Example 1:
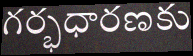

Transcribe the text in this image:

గర్భధారణకు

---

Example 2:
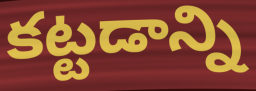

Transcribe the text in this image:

కట్టడాన్ని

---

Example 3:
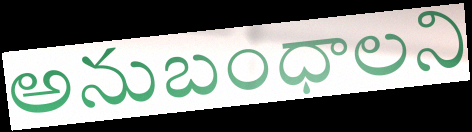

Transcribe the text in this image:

అనుబంధాలని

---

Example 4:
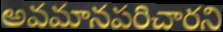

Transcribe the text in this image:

అవమానపరిచారని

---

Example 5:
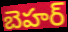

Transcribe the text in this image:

బెహర్